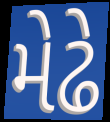
મેઢે